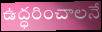
ఉద్ధరించాలనే